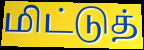
மிட்டுத்